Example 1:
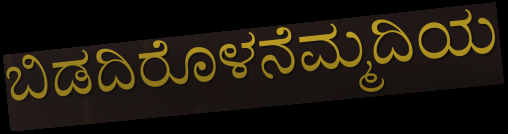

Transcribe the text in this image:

ಬಿಡದಿರೊಳನೆಮ್ಮದಿಯ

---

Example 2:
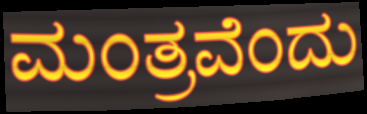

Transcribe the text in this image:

ಮಂತ್ರವೆಂದು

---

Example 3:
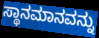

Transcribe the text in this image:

ಸ್ಥಾನಮಾನವನ್ನು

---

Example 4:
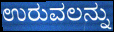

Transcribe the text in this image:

ಉರುವಲನ್ನು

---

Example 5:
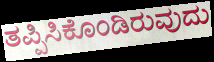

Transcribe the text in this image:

ತಪ್ಪಿಸಿಕೊಂಡಿರುವುದು